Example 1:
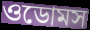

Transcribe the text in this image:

ওডোমস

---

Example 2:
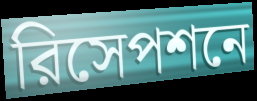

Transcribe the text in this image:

রিসেপশনে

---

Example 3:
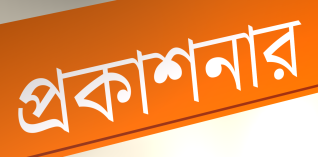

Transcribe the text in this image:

প্রকাশনার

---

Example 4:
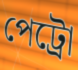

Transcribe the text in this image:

পেট্রো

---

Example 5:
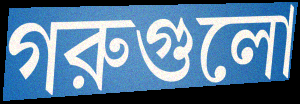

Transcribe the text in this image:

গরুগুলো